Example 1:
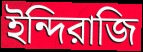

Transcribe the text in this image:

ইন্দিরাজি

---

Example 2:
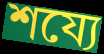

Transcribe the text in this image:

শয্যে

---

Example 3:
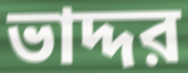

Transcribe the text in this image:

ভাদ্দর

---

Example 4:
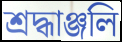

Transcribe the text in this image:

শ্রদ্ধাঞ্জলি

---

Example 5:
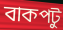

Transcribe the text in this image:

বাকপটু